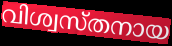
വിശ്വസ്തനായ